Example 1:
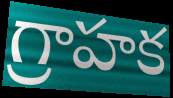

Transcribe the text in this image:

గ్రాహక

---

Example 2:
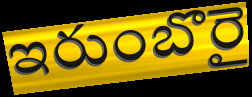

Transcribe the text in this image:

ఇరుంబొరై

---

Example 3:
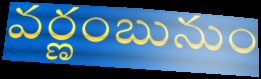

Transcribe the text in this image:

వర్ణంబునుం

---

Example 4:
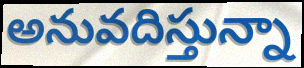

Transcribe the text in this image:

అనువదిస్తున్నా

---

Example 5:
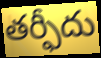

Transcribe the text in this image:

తర్ఫీదు